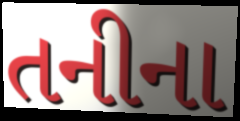
તનીના